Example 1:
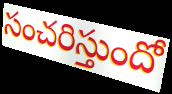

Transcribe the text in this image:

సంచరిస్తుందో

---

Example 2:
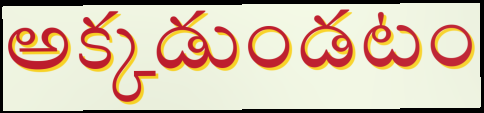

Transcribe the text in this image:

అక్కడుండటం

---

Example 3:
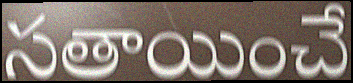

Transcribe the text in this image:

సతాయించే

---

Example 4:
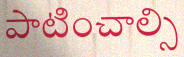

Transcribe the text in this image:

పాటించాల్సి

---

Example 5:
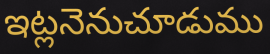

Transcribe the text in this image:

ఇట్లనెనుచూడుము